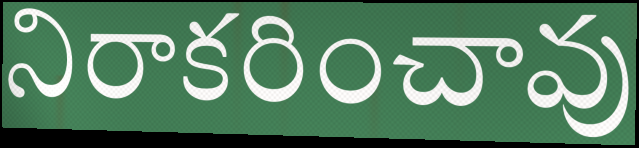
నిరాకరించావు